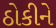
ઠોકીને